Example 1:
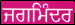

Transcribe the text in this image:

ਜਗਮਿੰਦਰ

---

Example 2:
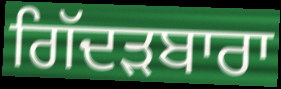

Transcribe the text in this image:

ਗਿੱਦੜਬਾਰਾ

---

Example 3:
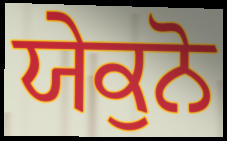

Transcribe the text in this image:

ਯੇਕੁਨੋ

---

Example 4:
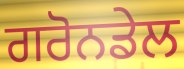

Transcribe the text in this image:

ਗਰੋਨਡੇਲ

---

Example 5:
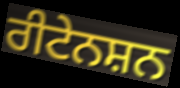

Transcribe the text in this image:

ਰੀਟੇਨਸ਼ਨ